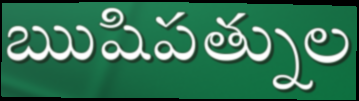
ఋషిపత్నుల